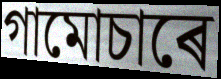
গামোচাৰে